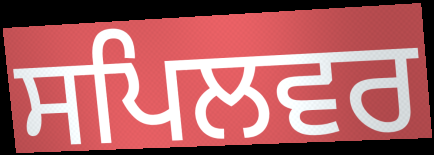
ਸਪਿਲਵਰ